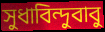
সুধাবিন্দুবাবু